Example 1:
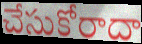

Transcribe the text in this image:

చేసుకోరాదా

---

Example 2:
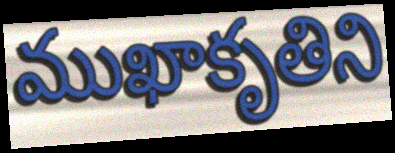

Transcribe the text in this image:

ముఖాకృతిని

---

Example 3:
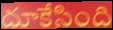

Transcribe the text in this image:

దూకేసింది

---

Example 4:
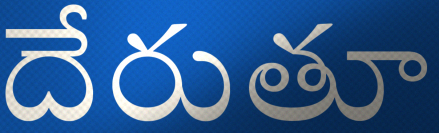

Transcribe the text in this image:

దేరుతూ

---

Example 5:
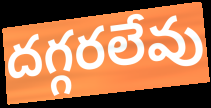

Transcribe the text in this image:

దగ్గరలేవు